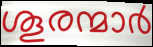
ശൂരന്മാർ